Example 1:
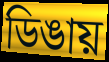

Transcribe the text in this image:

ডিঙায়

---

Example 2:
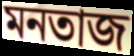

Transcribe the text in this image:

মনতাজ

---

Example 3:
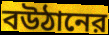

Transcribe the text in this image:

বউঠানের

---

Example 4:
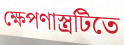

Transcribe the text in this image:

ক্ষেপণাস্ত্রটিতে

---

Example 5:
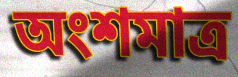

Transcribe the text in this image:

অংশমাত্র